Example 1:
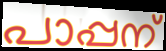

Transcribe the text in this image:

പാപ്പന്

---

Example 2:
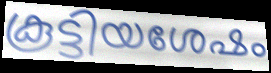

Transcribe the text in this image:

കൂട്ടിയശേഷം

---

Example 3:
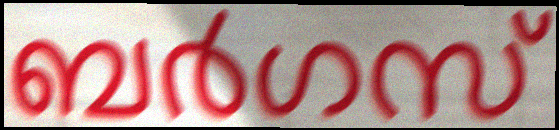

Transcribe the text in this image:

ബർഗസ്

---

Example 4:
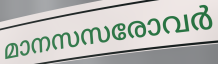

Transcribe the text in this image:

മാനസസരോവർ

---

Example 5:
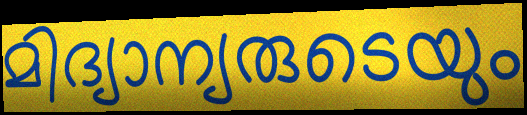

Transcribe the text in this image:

മിദ്യാന്യരുടെയും